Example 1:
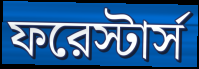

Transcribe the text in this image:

ফরেস্টার্স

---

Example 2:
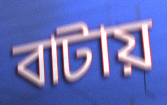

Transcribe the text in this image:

বাটায়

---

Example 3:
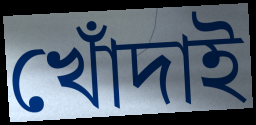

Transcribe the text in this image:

খোঁদাই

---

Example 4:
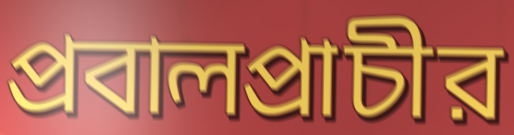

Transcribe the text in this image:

প্রবালপ্রাচীর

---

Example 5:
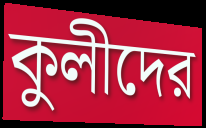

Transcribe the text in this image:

কুলীদের